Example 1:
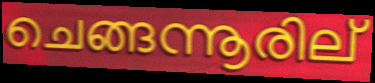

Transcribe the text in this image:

ചെങ്ങന്നൂരില്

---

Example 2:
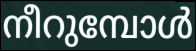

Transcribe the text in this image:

നീറുമ്പോൾ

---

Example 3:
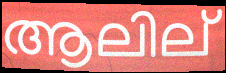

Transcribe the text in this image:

ആലില്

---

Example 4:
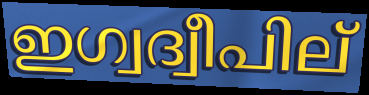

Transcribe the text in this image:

ഇഗ്വദ്വീപില്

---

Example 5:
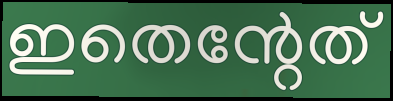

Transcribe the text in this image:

ഇതെന്റേത്